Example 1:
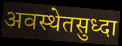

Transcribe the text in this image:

अवस्थेतसुध्दा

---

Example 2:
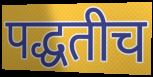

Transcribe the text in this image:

पद्धतीच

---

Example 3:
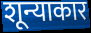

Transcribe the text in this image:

शून्याकार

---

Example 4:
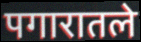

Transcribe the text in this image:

पगारातले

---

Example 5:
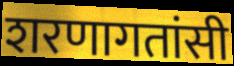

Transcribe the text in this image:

शरणागतांसी